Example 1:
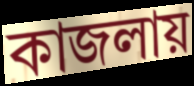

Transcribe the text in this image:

কাজলায়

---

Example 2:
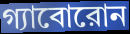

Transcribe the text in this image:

গ্যাবোরোন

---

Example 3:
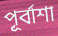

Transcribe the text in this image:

পূর্বাশা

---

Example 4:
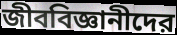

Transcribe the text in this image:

জীববিজ্ঞানীদের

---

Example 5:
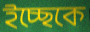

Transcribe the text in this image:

ইচ্ছেকে